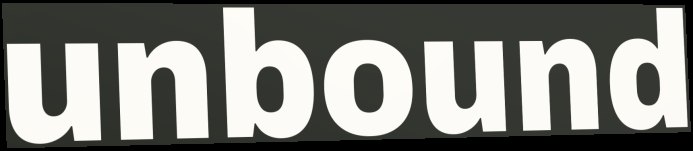
unbound